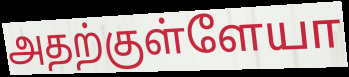
அதற்குள்ளேயா